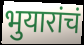
भुयारांचं